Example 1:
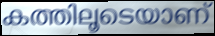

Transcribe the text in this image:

കത്തിലൂടെയാണ്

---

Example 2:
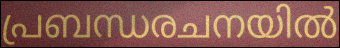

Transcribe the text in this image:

പ്രബന്ധരചനയിൽ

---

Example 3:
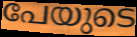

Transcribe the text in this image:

പേയുടെ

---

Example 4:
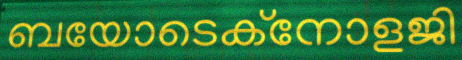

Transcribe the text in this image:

ബയോടെക്നോളജി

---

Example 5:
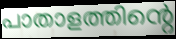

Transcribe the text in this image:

പാതാളത്തിന്റെ